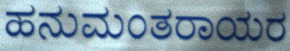
ಹನುಮಂತರಾಯರ